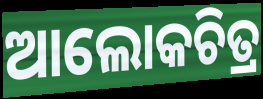
ଆଲୋକଚିତ୍ର